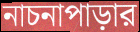
নাচনাপাড়ার